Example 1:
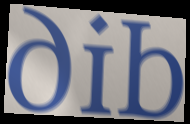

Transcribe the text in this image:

dib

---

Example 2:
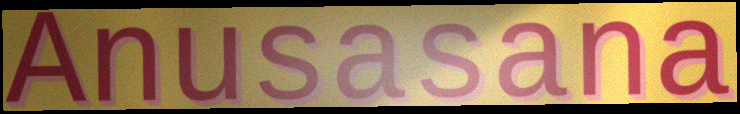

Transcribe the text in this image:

Anusasana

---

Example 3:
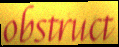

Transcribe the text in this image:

obstruct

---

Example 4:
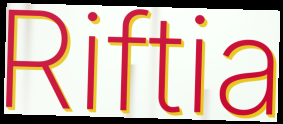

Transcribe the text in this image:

Riftia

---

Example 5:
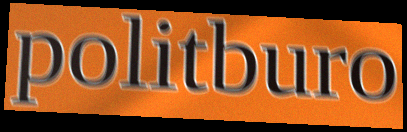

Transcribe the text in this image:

politburo